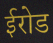
ईरोड